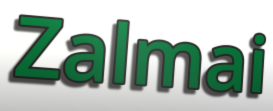
Zalmai